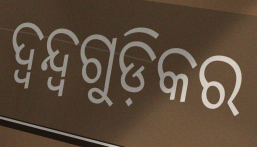
ଦ୍ୱନ୍ଦ୍ୱଗୁଡ଼ିକର